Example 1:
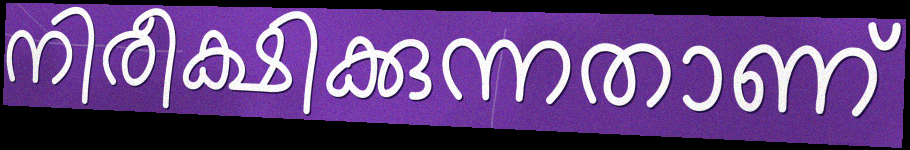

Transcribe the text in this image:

നിരീക്ഷിക്കുന്നതാണ്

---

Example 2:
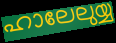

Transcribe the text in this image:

ഹാലേലുയ്യ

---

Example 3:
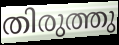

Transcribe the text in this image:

തിരുത്തു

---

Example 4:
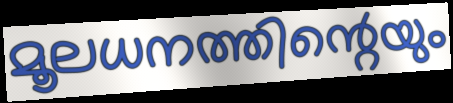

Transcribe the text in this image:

മൂലധനത്തിന്റെയും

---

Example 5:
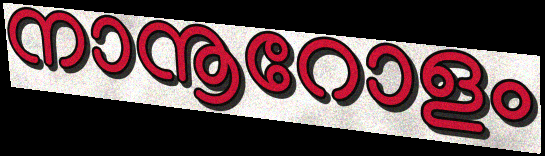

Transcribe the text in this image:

നാനൂറോളം